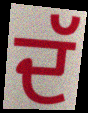
ਦੱ